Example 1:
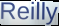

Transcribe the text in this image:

Reilly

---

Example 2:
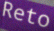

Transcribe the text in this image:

Reto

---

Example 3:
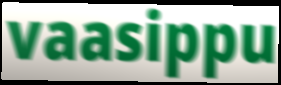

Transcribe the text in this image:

vaasippu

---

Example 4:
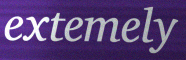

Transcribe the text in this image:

extemely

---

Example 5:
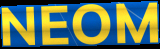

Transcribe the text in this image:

NEOM